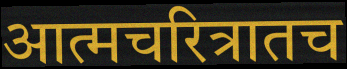
आत्मचरित्रातच